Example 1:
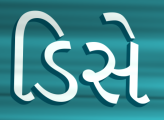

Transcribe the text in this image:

ડિસે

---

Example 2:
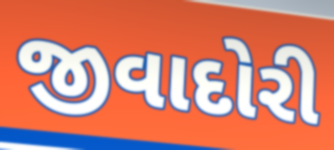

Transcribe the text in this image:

જીવાદોરી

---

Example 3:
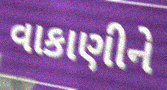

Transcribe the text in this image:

વાકાણીને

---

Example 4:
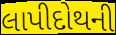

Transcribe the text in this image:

લાપીદોથની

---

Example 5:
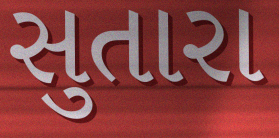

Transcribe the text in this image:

સુતારા